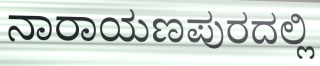
ನಾರಾಯಣಪುರದಲ್ಲಿ